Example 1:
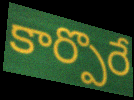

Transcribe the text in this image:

కార్పొరే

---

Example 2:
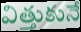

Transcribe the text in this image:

విత్తుకునే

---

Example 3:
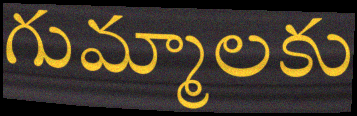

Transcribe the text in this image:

గుమ్మాలకు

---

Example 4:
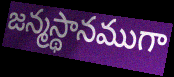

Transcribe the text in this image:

జన్మస్థానముగా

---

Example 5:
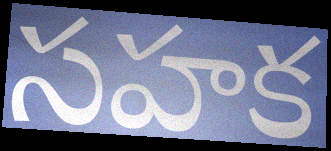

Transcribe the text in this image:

సహక